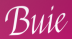
Buie